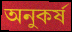
অনুকর্ষ